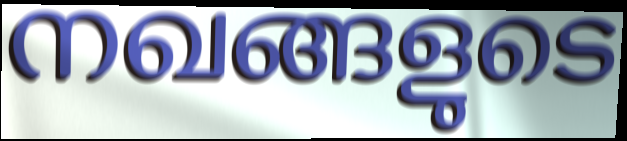
നഖങ്ങളുടെ